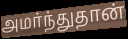
அமர்ந்துதான்